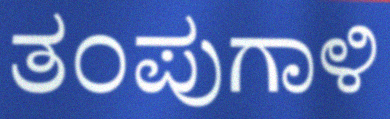
ತಂಪುಗಾಳಿ